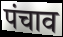
पंचाव